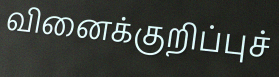
வினைக்குறிப்புச்